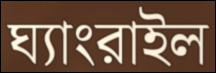
ঘ্যাংরাইল